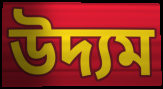
উদ্যম